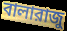
বালারাজু